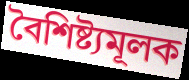
বৈশিষ্ট্যমূলক